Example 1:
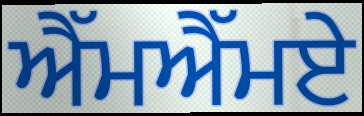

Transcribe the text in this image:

ਐੱਮਐੱਮਏ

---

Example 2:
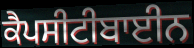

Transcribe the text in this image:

ਕੈਪਸੀਟੀਬਾਈਨ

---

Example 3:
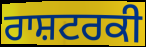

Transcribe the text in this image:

ਰਾਸ਼ਟਰਕੀ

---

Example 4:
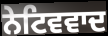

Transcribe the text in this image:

ਨੇਟਿਵਵਾਦ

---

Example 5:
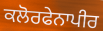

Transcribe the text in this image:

ਕਲੋਰਫੇਨਾਪੀਰ